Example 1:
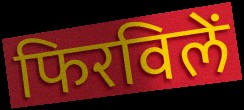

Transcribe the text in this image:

फिरविलें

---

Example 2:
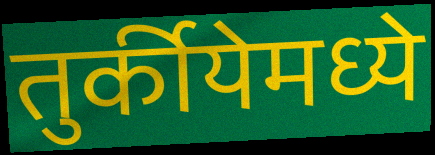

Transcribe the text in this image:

तुर्कीयेमध्ये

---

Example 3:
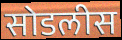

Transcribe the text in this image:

सोडलीस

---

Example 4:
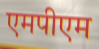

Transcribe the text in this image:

एमपीएम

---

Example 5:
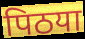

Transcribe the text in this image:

पिठया